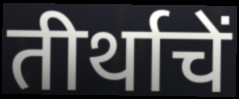
तीर्थाचें